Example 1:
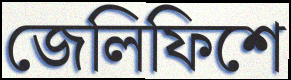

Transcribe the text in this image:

জেলিফিশে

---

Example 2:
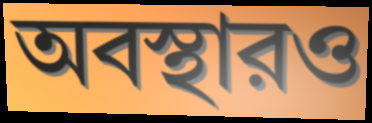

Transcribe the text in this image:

অবস্থারও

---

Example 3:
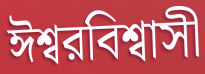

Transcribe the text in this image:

ঈশ্বরবিশ্বাসী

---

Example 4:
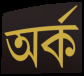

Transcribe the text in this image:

অর্ক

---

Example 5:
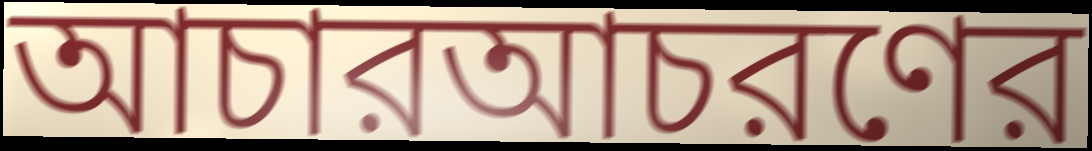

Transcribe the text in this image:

আচারআচরণের